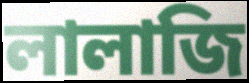
লালাজি